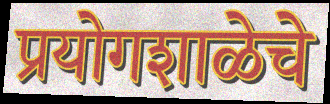
प्रयोगशाळेचे